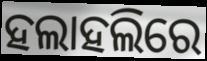
ହଲାହଲିରେ